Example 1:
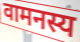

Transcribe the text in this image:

वामनस्य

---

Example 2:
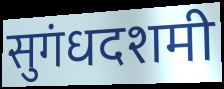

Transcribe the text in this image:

सुगंधदशमी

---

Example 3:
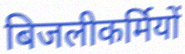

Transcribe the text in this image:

बिजलीकर्मियों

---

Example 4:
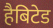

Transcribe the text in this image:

हैबिटेड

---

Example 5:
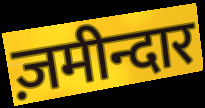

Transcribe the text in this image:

ज़मीन्दार